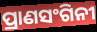
ପ୍ରାଣସଂଗିନୀ